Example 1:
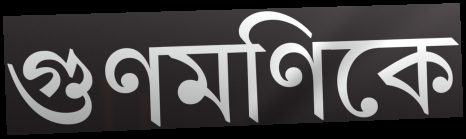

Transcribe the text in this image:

গুণমণিকে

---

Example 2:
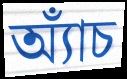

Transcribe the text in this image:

অ্যাঁচ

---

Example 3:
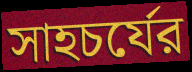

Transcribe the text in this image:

সাহচর্যের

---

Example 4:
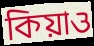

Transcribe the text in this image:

কিয়াও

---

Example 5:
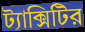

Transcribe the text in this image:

ট্যাক্সিটির